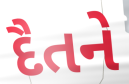
દૈતને